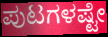
ಪುಟಗಳಷ್ಟೇ